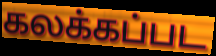
கலக்கப்பட